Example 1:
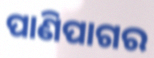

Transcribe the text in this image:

ପାଣିପାଗର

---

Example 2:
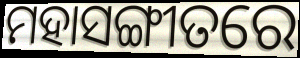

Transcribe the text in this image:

ମହାସଙ୍ଗୀତରେ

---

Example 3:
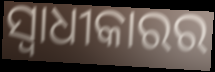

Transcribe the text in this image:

ସ୍ୱାଧୀକାରର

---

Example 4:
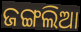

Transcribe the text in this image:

ଜଙ୍ଗଲିଆ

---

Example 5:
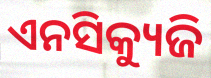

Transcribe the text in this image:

ଏନସିକ୍ୟୁଜି